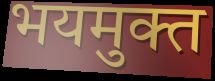
भयमुक्‍त